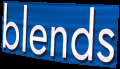
blends